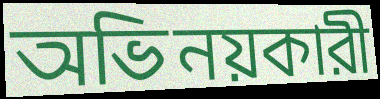
অভিনয়কারী